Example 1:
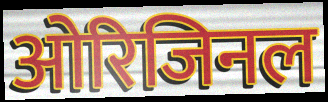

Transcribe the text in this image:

ओरिजिनल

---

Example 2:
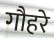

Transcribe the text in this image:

गौहरे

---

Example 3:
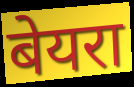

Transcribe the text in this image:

बेयरा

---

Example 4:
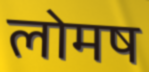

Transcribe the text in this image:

लोमष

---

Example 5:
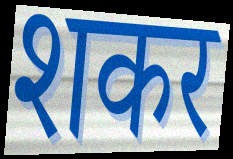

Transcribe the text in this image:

शकर